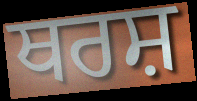
ਥਰਸ਼